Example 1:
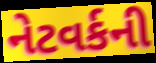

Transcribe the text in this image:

નેટવર્કની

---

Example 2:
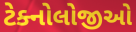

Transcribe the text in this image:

ટેક્નોલોજીઓ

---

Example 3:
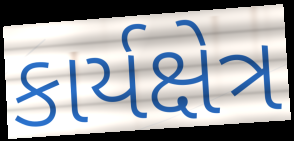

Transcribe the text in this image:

કાર્યક્ષેત્ર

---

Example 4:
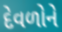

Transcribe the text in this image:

દેવળોને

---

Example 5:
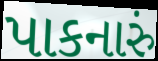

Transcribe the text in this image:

પાકનારું